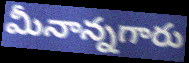
మీనాన్నగారు